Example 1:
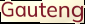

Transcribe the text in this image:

Gauteng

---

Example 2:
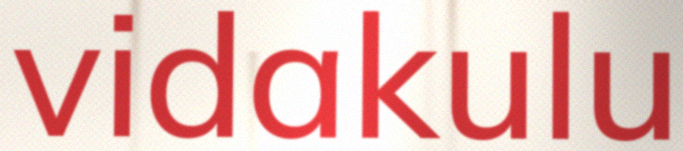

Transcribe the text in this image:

vidakulu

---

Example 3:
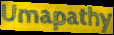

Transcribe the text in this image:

Umapathy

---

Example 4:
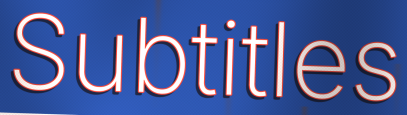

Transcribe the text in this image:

Subtitles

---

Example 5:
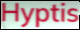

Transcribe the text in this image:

Hyptis